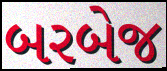
બરબેજ